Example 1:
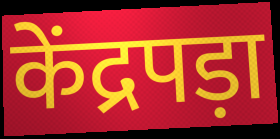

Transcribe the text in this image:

केंद्रपड़ा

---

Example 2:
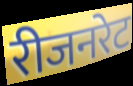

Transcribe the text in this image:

रीजनरेट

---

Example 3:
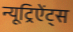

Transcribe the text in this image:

न्यूट्रिऐंट्स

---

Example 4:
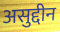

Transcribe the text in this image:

असुद्दीन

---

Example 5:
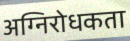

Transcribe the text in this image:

अग्निरोधकता